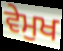
ਵੇਮੁਖ